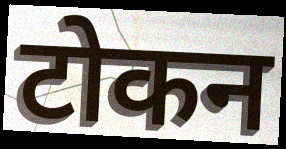
टोकन